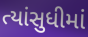
ત્યાંસુધીમાં